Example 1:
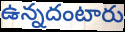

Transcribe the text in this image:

ఉన్నదంటారు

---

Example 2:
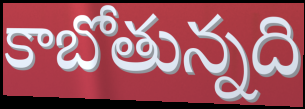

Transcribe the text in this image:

కాబోతున్నది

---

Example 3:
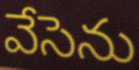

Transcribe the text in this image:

వేసెను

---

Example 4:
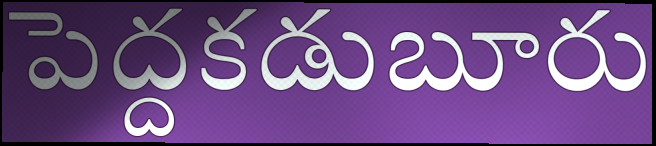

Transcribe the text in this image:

పెద్దకడుబూరు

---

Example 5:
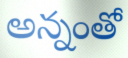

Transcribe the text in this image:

అన్నంతో